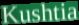
Kushtia